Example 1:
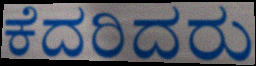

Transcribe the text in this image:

ಕೆದರಿದರು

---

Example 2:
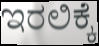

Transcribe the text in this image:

ಇರಲಿಕ್ಕೆ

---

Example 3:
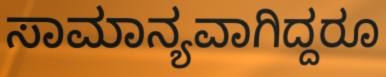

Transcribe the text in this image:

ಸಾಮಾನ್ಯವಾಗಿದ್ದರೂ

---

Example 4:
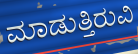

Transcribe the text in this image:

ಮಾಡುತ್ತಿರುವಿ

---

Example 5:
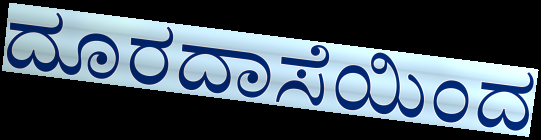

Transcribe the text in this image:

ದೂರದಾಸೆಯಿಂದ